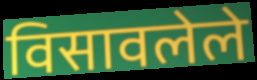
विसावलेले